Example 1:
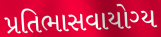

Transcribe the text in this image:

પ્રતિભાસવાયોગ્ય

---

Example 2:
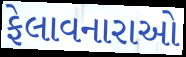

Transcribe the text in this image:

ફેલાવનારાઓ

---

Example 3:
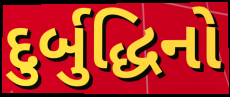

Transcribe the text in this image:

દુર્બુદ્ધિનો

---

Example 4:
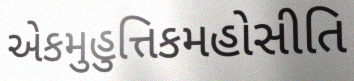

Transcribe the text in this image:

એકમુહુત્તિકમહોસીતિ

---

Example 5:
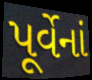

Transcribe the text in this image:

પૂર્વેનાં